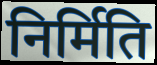
निर्मिति